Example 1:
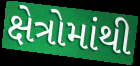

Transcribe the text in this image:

ક્ષેત્રોમાંથી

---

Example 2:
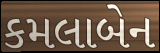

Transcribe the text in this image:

કમલાબેન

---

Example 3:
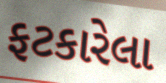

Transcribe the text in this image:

ફટકારેલા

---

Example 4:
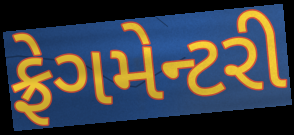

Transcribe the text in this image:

ફ્રેગમેન્ટરી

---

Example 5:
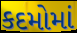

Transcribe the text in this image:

કદમોમાં